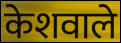
केशवाले